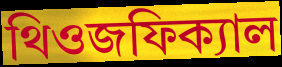
থিওজফিক্যাল